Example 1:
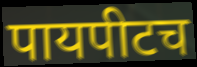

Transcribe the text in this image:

पायपीटच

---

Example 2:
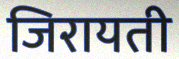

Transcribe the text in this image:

जिरायती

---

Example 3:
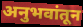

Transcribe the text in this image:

अनुभवांतून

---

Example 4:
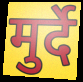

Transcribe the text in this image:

मुर्दे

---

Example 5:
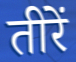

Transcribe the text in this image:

तीरें